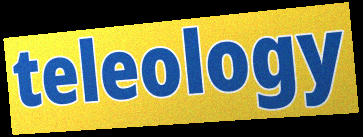
teleology